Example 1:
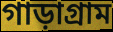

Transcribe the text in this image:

গাড়াগ্রাম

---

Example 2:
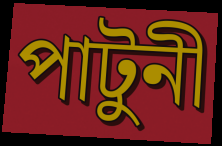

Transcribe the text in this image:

পাটুনী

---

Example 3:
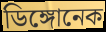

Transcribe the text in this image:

ডিঙ্গোনেক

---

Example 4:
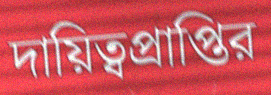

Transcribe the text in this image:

দায়িত্বপ্রাপ্তির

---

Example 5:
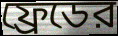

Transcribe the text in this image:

ফ্রেডের